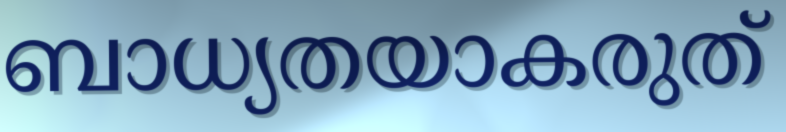
ബാധ്യതയാകരുത്